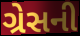
ગ્રેસની